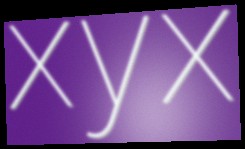
xyx